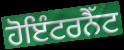
ਹੋਇੰਟਰਨੈੱਟ